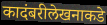
कादंबरीलेखनाकडे